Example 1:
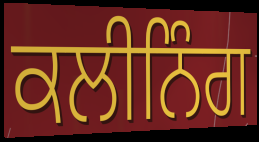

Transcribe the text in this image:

ਕਲੀਨਿੰਗ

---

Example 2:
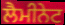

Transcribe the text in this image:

ਲੈਮੀਨੇਟ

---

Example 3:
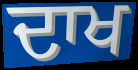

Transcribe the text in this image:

ਦਾਖ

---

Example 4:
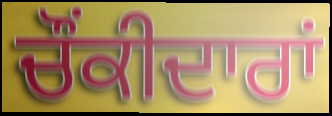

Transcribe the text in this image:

ਚੌਂਕੀਦਾਰਾਂ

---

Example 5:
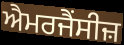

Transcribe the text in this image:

ਐਮਰਜੈਂਸੀਜ਼